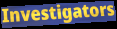
Investigators